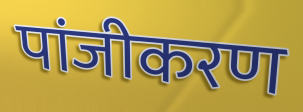
पांजीकरण